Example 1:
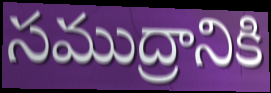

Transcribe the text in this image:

సముద్రానికి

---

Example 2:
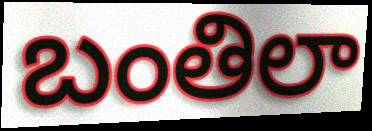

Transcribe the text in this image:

బంతిలా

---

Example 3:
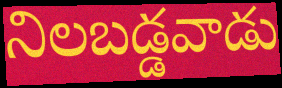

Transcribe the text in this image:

నిలబడ్డవాడు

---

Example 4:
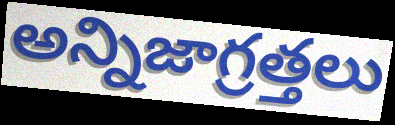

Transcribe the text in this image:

అన్నిజాగ్రత్తలు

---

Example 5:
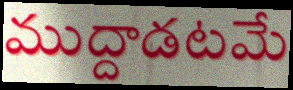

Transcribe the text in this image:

ముద్దాడటమే